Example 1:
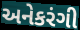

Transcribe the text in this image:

અનેકરંગી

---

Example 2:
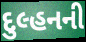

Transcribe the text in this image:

દુલ્હનની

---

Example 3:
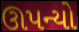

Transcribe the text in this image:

ઊપન્યો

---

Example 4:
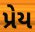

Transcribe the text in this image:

પ્રેય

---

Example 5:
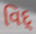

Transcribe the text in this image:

વિદ્